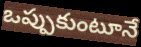
ఒప్పుకుంటూనే